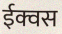
ईक्‍वस